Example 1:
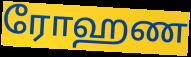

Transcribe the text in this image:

ரோஹண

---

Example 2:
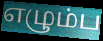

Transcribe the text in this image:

எழும்ப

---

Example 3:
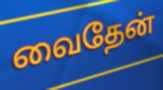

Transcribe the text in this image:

வைதேன்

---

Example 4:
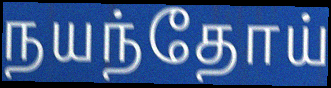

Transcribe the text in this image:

நயந்தோய்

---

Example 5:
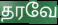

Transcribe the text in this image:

தரவே